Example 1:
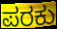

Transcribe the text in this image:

ಪರಕು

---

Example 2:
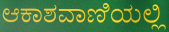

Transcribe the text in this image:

ಆಕಾಶವಾಣಿಯಲ್ಲಿ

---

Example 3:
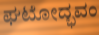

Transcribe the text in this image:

ಘಟೋದ್ಭವಂ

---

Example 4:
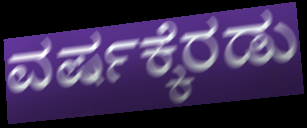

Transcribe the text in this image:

ವರ್ಷಕ್ಕೆರಡು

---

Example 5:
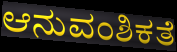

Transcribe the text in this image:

ಆನುವಂಶಿಕತೆ